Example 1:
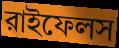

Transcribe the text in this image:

রাইফেলস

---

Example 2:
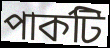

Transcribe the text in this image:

পার্কটি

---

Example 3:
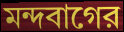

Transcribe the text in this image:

মন্দবাগের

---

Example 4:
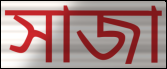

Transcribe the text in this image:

সাজা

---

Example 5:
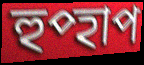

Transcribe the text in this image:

হুপ্হাপ